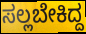
ಸಲ್ಲಬೇಕಿದ್ದ